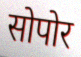
सोपोर